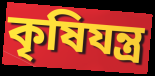
কৃষিযন্ত্র